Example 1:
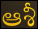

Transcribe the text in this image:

ఆశీ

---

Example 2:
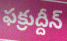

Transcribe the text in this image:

ఫక్రుద్దీన్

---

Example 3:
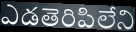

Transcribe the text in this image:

ఎడతెరిపిలేని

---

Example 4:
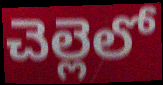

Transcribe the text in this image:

చెల్లెలో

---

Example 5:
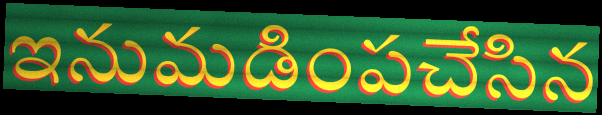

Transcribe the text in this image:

ఇనుమడింపచేసిన